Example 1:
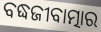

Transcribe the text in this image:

ବଦ୍ଧଜୀବାତ୍ମାର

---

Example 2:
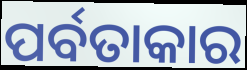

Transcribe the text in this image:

ପର୍ବତାକାର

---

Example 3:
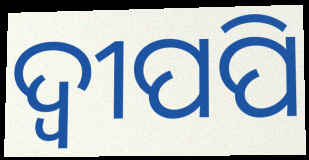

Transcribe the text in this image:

ଦ୍ବୀପପି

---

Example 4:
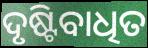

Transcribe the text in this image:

ଦୃଷ୍ଟିବାଧିତ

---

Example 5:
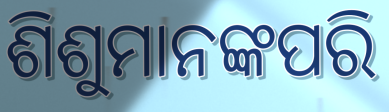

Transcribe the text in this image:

ଶିଶୁମାନଙ୍କପରି